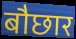
बौछार